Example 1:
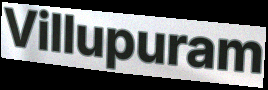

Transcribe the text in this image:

Villupuram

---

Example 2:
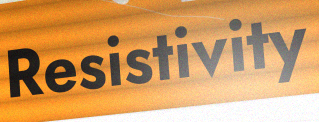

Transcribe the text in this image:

Resistivity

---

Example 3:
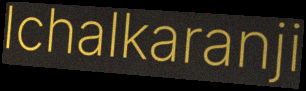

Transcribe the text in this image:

Ichalkaranji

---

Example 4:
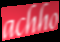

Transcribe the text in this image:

achho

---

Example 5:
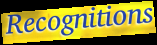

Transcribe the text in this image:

Recognitions